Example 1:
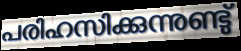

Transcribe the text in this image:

പരിഹസിക്കുന്നുണ്ടു്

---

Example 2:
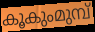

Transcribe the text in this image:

കൂകുംമുമ്പ്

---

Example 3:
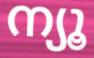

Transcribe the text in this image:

ന്യൂ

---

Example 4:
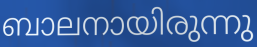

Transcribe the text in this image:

ബാലനായിരുന്നു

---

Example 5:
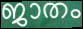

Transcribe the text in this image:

ജാതം